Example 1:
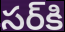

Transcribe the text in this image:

సర్‌కి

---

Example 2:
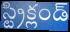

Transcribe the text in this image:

స్ట్రిక్లండ్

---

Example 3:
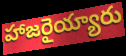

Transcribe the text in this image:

హాజరైయ్యారు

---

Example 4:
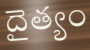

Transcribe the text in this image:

దైత్యం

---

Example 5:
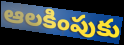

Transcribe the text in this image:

ఆలకింపుకు